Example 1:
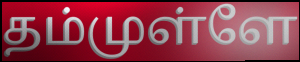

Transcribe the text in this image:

தம்முள்ளே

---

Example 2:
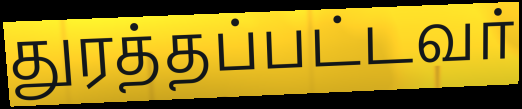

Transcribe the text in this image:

துரத்தப்பட்டவர்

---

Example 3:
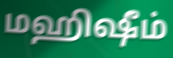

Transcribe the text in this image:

மஹிஷீம்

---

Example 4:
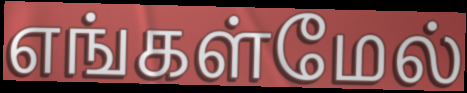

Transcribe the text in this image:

எங்கள்மேல்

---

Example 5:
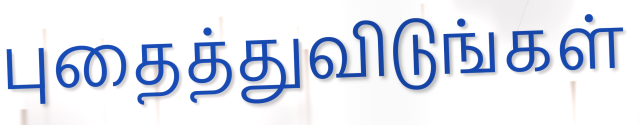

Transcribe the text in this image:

புதைத்துவிடுங்கள்